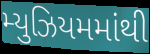
મ્યુઝિયમમાંથી